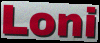
Loni